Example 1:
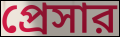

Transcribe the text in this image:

প্রেসার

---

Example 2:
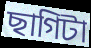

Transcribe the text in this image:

ছাগিটা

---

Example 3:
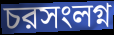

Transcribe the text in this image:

চরসংলগ্ন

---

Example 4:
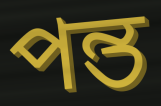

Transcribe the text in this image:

পন্ত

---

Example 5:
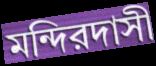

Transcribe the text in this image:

মন্দিরদাসী